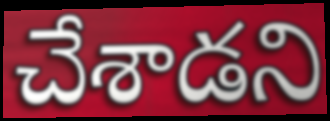
చేశాడని